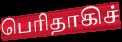
பெரிதாகிச்